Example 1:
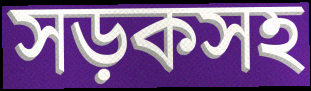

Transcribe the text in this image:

সড়কসহ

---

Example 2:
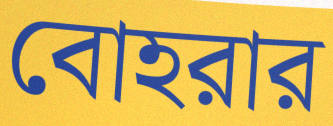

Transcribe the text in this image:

বোহরার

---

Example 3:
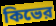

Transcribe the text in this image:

কিভের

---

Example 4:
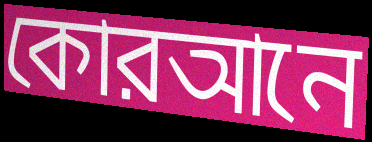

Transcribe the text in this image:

কোরআনে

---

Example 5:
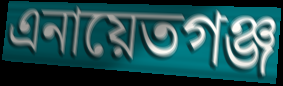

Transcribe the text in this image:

এনায়েতগঞ্জ